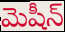
మెషీన్